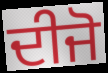
ਦੀਜੋ